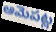
ఆమెపట్ల